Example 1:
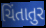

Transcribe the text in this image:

ચિંતાતુર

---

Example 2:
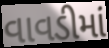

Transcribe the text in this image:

વાવડીમાં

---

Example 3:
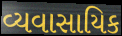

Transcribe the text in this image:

વ્યવાસાયિક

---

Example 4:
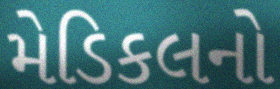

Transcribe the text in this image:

મેડિકલનો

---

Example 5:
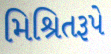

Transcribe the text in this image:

મિશ્રિતરૂપે